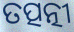
ତତ୍ପତ୍ନୀ